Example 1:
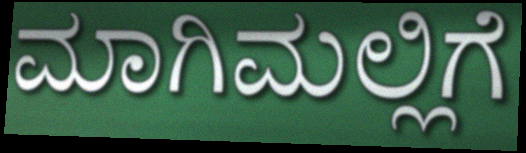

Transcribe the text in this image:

ಮಾಗಿಮಲ್ಲಿಗೆ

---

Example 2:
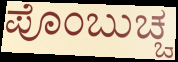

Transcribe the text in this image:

ಪೊಂಬುಚ್ಚ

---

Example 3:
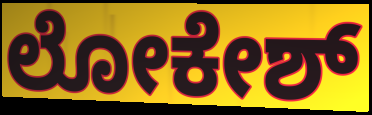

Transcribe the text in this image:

ಲೋಕೇಶ್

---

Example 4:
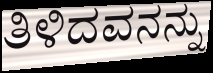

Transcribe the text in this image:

ತಿಳಿದವನನ್ನು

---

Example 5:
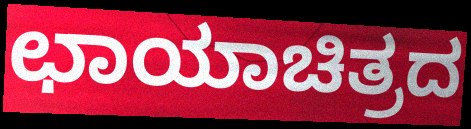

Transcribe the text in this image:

ಛಾಯಾಚಿತ್ರದ